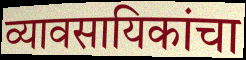
व्यावसायिकांचा